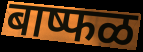
बाष्फळ